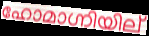
ഹോമാഗ്നിയില്